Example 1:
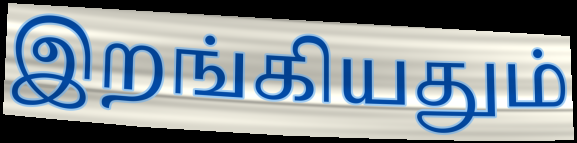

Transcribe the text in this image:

இறங்கியதும்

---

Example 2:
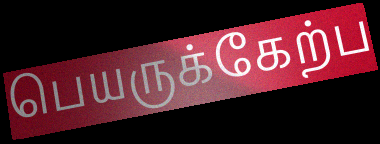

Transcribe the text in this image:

பெயருக்கேற்ப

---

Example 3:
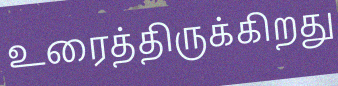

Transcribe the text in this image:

உரைத்திருக்கிறது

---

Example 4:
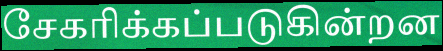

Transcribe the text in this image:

சேகரிக்கப்படுகின்றன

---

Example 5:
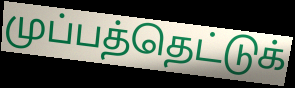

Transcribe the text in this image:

முப்பத்தெட்டுக்